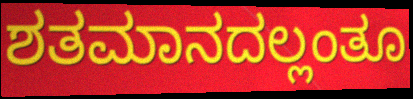
ಶತಮಾನದಲ್ಲಂತೂ